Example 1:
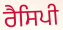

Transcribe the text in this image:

ਰੈਸਿਪੀ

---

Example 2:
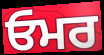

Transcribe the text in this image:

ਓਮਰ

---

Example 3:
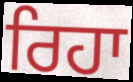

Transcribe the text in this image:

ਰਿਹਾ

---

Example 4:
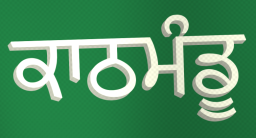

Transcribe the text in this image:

ਕਾਠਮੰਡੂ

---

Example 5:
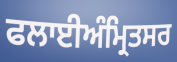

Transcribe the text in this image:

ਫਲਾਈਅੰਮ੍ਰਿਤਸਰ